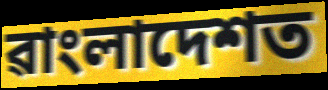
ৱাংলাদেশত